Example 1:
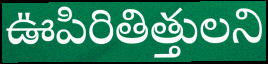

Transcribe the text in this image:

ఊపిరితిత్తులని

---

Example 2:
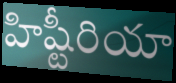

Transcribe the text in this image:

హిష్టీరియా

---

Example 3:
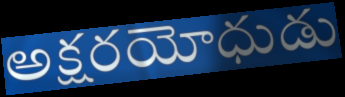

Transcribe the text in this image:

అక్షరయోధుడు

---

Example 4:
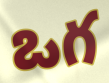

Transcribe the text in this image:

ఒగ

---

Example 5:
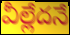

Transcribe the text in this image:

వీల్లేదనే